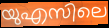
യുഎസിലെ